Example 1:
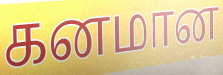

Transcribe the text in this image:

கனமான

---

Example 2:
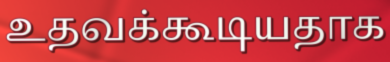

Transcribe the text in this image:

உதவக்கூடியதாக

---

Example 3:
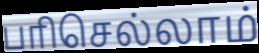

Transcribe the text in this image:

பரிசெல்லாம்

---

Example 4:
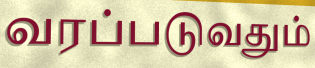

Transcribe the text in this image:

வரப்படுவதும்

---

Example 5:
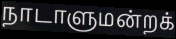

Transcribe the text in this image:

நாடாளுமன்றக்